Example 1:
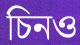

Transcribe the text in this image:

চিনও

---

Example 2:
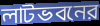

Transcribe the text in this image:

লাটভবনের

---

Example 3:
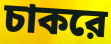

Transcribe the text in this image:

চাকরে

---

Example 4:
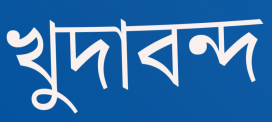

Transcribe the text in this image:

খুদাবন্দ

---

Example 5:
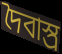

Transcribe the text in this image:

দৈবাস্ত্র